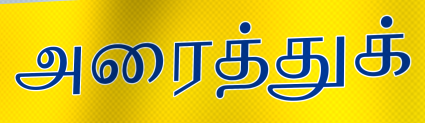
அரைத்துக்